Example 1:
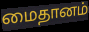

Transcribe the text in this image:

மைதானம்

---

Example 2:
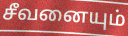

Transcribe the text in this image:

சீவனையும்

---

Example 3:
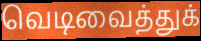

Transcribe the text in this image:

வெடிவைத்துக்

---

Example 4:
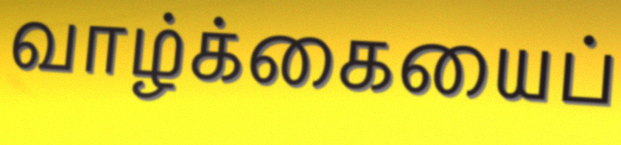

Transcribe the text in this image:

வாழ்க்கையைப்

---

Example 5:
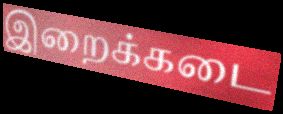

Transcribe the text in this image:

இறைக்கடை